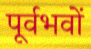
पूर्वभवों